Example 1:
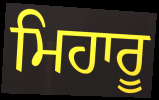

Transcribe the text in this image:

ਮਿਹਾਰੂ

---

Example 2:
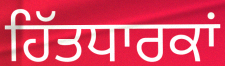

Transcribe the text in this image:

ਹਿੱਤਧਾਰਕਾਂ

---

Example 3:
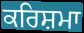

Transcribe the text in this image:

ਕਰਿਸ਼ਮਾ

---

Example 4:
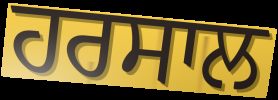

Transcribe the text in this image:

ਹਰਸਾਲ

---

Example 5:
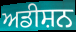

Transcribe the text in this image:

ਅਡੀਸ਼ਨ